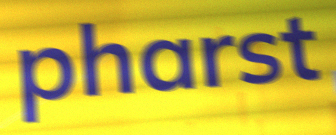
pharst